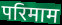
परिमाम